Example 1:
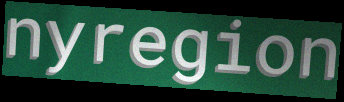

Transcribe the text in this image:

nyregion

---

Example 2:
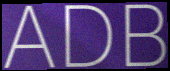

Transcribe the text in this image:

ADB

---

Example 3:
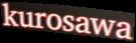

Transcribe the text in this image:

kurosawa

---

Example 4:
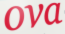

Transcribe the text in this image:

ova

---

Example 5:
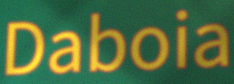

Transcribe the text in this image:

Daboia